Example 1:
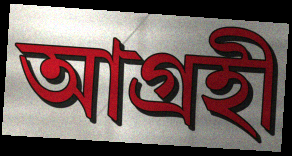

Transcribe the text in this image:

আগ্রহী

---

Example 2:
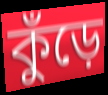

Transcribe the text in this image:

কুঁড়ে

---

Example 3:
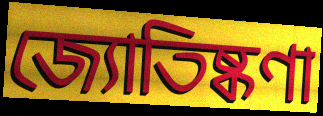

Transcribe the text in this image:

জ্যোতিষ্কণা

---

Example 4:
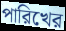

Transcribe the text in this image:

পারিখের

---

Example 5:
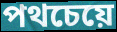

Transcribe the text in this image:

পথচেয়ে